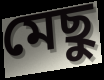
মেছু